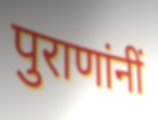
पुराणांनीं